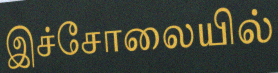
இச்சோலையில்